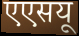
एएसयू